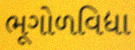
ભૂગોળવિદ્યા